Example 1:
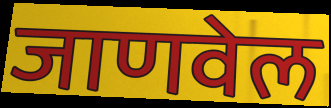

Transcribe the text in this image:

जाणवेल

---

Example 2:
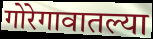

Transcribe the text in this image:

गोरेगावातल्या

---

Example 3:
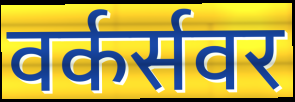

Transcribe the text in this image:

वर्कर्सवर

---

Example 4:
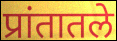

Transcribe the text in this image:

प्रांतातले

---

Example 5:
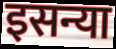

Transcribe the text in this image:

इसन्या